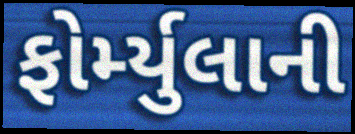
ફોર્મ્યુલાની